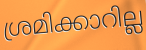
ശ്രമിക്കാറില്ല